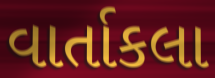
વાર્તાકલા